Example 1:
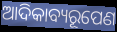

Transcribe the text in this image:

ଆଦିକାବ୍ୟରୂପେଣ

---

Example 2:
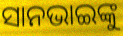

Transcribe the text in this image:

ସାନଭାଇଙ୍କୁ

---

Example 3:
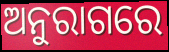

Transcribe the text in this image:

ଅନୁରାଗରେ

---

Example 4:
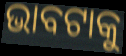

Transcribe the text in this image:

ଭାବଟାକୁ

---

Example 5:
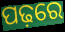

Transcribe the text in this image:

ପଢ଼ରେ